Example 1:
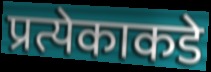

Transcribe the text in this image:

प्रत्येकाकडे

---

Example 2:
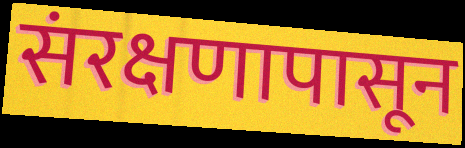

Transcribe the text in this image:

संरक्षणापासून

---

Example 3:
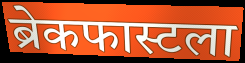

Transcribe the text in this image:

ब्रेकफास्टला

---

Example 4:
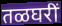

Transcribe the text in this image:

तळघरीं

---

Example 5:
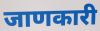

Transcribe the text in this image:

जाणकारी